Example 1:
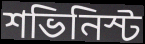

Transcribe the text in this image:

শভিনিস্ট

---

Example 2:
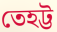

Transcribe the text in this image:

তেহট্ট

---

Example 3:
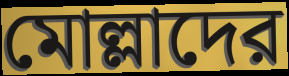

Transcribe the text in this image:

মোল্লাদের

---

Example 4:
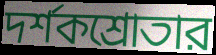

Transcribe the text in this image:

দর্শকশ্রোতার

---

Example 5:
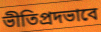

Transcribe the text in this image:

ভীতিপ্রদভাবে